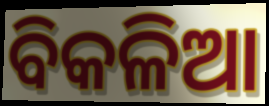
ବିକଳିଆ